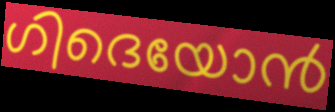
ഗിദെയോൻ